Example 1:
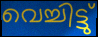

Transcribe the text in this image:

വെച്ചിട്ടു്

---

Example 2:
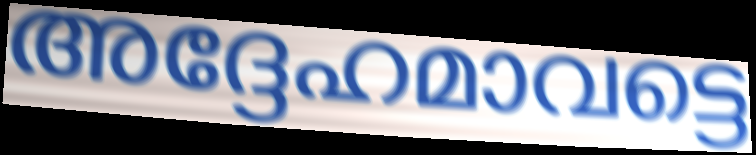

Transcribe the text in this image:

അദ്ദേഹമാവട്ടെ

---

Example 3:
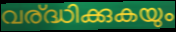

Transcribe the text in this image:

വര്ദ്ധിക്കുകയും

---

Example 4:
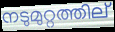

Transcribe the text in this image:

നടുമുറ്റത്തില്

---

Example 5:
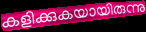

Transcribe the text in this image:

കളിക്കുകയായിരുന്നു